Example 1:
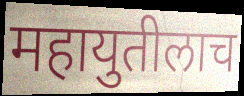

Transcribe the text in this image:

महायुतीलाच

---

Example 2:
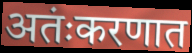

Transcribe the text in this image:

अतंःकरणात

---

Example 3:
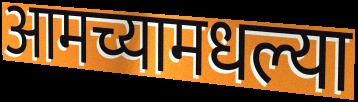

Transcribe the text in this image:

आमच्यामधल्या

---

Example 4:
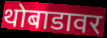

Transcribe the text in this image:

थोबाडावर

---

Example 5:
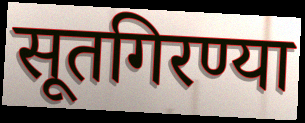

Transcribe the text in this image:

सूतगिरण्या